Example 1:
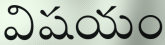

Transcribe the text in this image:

విషయం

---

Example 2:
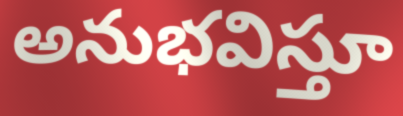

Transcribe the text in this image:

అనుభవిస్తూ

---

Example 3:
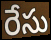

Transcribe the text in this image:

రేసు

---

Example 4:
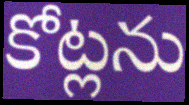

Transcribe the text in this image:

కోట్లను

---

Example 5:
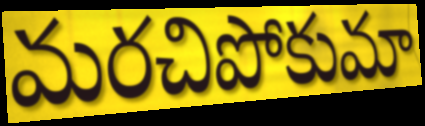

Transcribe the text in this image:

మరచిపోకుమా